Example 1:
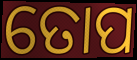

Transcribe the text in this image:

ତୋପ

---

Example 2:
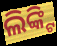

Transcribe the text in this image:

ଲିଙ୍କ୍ଟି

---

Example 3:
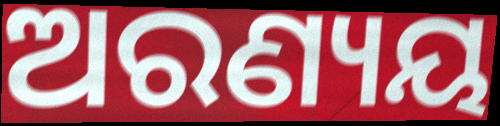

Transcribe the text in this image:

ଅରଣ୍ୟୟ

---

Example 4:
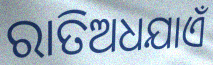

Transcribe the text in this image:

ରାତିଅଧଯାଏଁ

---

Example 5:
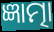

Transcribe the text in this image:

ଜ୍ଞାତ୍ମା